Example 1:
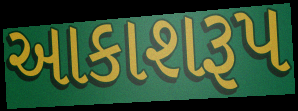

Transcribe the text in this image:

આકાશરૂપ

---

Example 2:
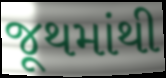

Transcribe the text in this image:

જૂથમાંથી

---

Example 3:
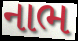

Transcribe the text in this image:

નાભ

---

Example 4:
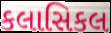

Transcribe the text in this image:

કલાસિકલ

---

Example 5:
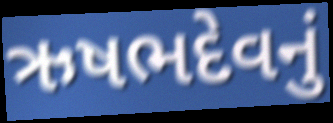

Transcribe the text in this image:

ઋષભદેવનું